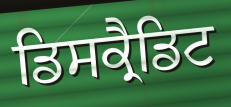
ਡਿਸਕ੍ਰੈਡਿਟ